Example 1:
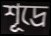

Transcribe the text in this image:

শূদ্রে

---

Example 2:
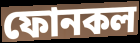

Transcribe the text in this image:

ফোনকল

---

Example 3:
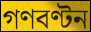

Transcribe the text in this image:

গণবণ্টন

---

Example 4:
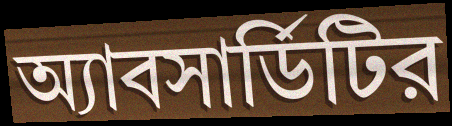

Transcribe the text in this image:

অ্যাবসার্ডিটির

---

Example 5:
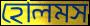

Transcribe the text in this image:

হোলমস